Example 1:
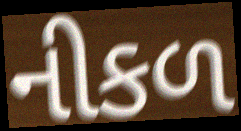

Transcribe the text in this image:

નીકળ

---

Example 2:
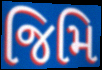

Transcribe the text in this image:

જિમિ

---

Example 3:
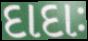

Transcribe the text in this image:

દાદાઃ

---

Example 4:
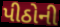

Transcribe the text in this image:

પીઠોની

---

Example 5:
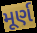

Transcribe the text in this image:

મૂર્ણ